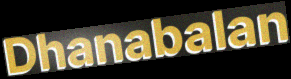
Dhanabalan